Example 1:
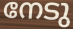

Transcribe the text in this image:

നേടു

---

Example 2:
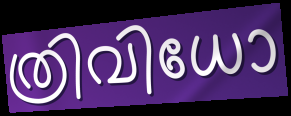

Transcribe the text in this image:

ത്രിവിധോ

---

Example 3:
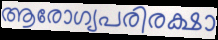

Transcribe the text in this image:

ആരോഗ്യപരിരക്ഷാ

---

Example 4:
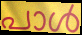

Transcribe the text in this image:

പാൾ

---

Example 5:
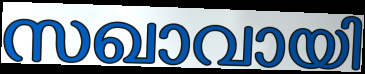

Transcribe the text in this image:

സഖാവായി